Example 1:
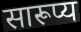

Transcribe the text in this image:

सारूप्य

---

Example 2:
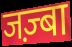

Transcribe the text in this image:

जज़्बा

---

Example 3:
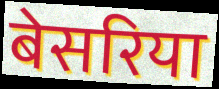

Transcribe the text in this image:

बेसरिया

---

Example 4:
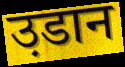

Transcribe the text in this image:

उ़डान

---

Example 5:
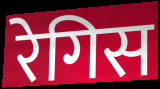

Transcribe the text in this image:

रेगिस